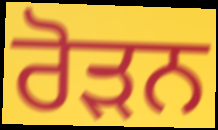
ਰੋੜਨ